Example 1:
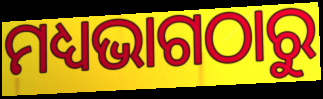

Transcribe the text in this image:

ମଧ୍ୟଭାଗଠାରୁ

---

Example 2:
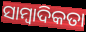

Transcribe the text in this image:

ସାମ୍ୱାଦିକତା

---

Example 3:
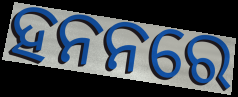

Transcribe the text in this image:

ହନନରେ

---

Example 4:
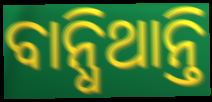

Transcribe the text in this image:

ବାନ୍ଧିଥାନ୍ତି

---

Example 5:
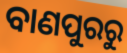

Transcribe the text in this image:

ବାଣପୁରରୁ